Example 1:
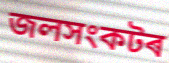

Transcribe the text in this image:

জলসংকটৰ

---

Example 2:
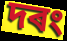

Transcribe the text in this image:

দৰং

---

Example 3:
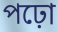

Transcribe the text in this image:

পঢ়ো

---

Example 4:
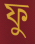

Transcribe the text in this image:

ফু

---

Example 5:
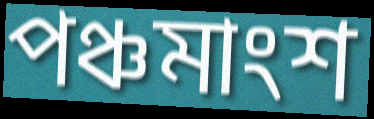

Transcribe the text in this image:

পঞ্চমাংশ